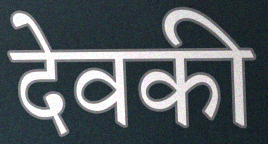
देवकी